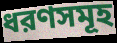
ধরণসমূহ